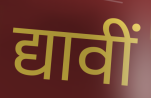
द्यावीं